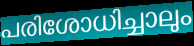
പരിശോധിച്ചാലും